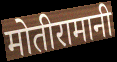
मोतीरामानी